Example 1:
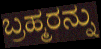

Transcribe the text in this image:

ಬ್ರಹ್ಮರನ್ನು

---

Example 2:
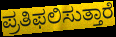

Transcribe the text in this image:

ಪ್ರತಿಫಲಿಸುತ್ತಾರೆ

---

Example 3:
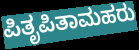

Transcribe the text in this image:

ಪಿತೃಪಿತಾಮಹರು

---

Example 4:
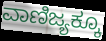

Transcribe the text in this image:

ವಾಣಿಜ್ಯಕ್ಕೂ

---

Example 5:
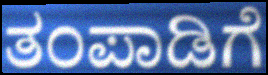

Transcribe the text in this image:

ತಂಪಾಡಿಗೆ